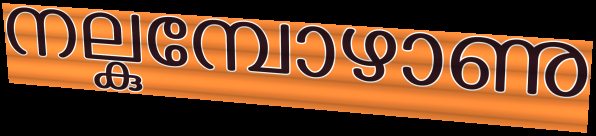
നല്കുമ്പോഴാണു